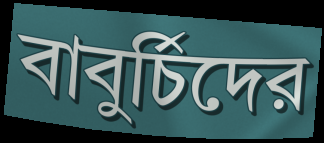
বাবুর্চিদের